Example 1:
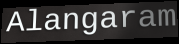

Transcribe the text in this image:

Alangaram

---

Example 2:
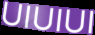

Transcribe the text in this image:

UIUIUI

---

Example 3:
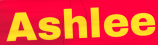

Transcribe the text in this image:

Ashlee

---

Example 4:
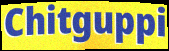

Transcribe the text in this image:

Chitguppi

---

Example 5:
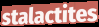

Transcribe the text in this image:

stalactites